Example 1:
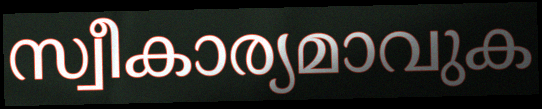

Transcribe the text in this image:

സ്വീകാര്യമാവുക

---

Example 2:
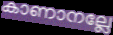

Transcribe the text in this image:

കാണാനല്ലേ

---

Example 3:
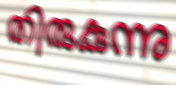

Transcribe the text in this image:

തിരുകുന്നു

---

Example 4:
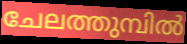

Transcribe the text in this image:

ചേലത്തുമ്പിൽ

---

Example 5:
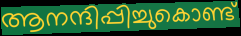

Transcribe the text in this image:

ആനന്ദിപ്പിച്ചുകൊണ്ട്